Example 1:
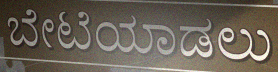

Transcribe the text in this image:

ಬೇಟೆಯಾಡಲು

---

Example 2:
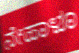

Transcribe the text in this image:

ನೇಹಾಳೂ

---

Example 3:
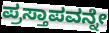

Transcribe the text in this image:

ಪ್ರಸ್ತಾಪವನ್ನೇ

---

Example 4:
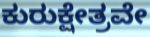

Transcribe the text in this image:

ಕುರುಕ್ಷೇತ್ರವೇ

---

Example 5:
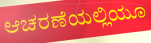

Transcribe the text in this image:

ಆಚರಣೆಯಲ್ಲಿಯೂ